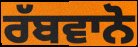
ਰੱਬਵਾਨੋ